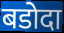
बडोदा